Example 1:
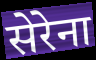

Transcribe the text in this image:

सेरेना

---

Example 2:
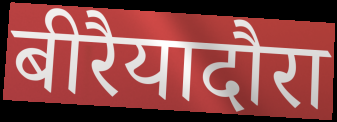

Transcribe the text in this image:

बीरैयादौरा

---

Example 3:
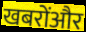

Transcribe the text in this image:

खबरोंऔर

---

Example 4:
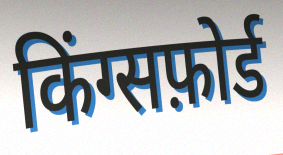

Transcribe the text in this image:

किंग्सफ़ोर्ड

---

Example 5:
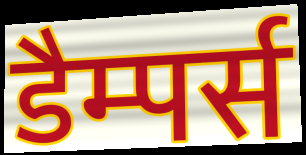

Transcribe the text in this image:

डैम्पर्स